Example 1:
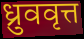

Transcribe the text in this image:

ध्रुववृत्त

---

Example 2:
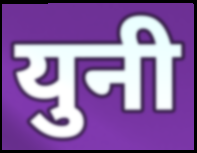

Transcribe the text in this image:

युनी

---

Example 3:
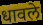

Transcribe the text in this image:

धावले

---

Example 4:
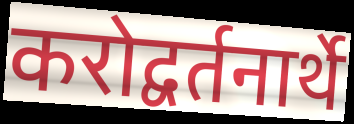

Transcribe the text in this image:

करोद्वर्तनार्थे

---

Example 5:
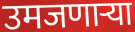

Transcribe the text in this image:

उमजणाऱ्या